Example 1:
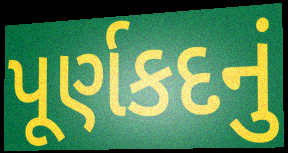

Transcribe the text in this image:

પૂર્ણકદનું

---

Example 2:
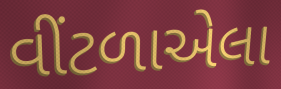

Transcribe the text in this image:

વીંટળાએલા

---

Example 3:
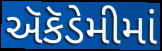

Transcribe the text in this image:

ઍકૅડેમીમાં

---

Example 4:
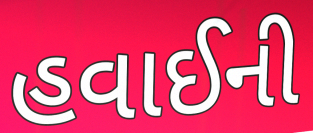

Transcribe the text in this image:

હવાઈની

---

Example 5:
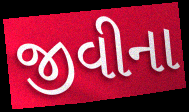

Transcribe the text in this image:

જીવીના